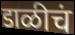
डाळीचं